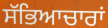
ਸੱਭਿਆਚਾਰਾਂ